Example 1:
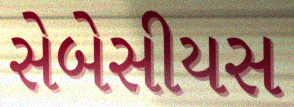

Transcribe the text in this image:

સેબેસીયસ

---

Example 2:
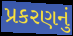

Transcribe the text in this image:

પ્રકરણનું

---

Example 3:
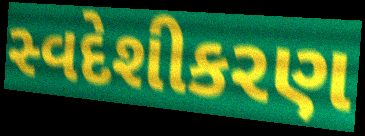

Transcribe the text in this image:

સ્વદેશીકરણ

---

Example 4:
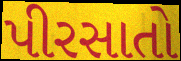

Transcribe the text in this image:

પીરસાતો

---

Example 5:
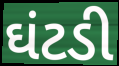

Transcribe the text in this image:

ઘંટડી